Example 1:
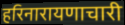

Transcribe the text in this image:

हरिनारायणाचारी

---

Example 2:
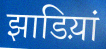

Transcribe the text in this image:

झाडिय़ां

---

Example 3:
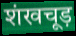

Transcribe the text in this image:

शंखचूड़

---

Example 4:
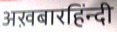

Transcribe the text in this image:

अख़बारहिंन्दी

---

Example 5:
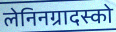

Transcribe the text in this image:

लेनिनग्रादस्को